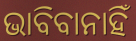
ଭାବିବାନାହିଁ